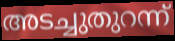
അടച്ചുതുറന്ന്